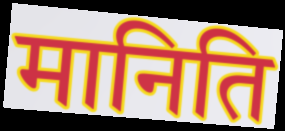
मानिति